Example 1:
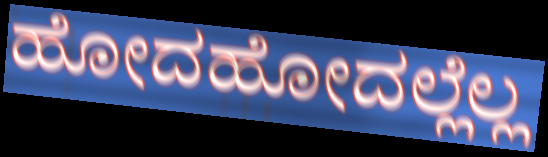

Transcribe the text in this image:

ಹೋದಹೋದಲ್ಲೆಲ್ಲ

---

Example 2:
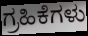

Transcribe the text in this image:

ಗ್ರಹಿಕೆಗಳು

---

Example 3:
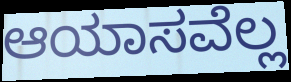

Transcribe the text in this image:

ಆಯಾಸವೆಲ್ಲ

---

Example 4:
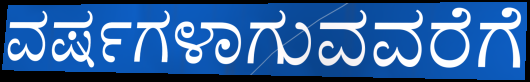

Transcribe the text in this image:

ವರ್ಷಗಳಾಗುವವರೆಗೆ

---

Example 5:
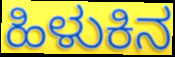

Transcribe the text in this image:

ಹಿಳುಕಿನ